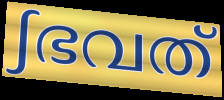
ഽഭവത്